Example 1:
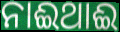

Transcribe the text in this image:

ନାଈଥାଈ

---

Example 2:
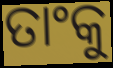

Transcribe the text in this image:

ତାଂକୁ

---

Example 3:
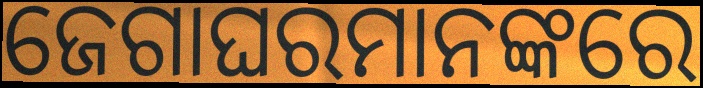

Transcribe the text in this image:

ଜେଗାଘରମାନଙ୍କରେ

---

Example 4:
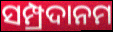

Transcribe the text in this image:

ସମ୍ପ୍ରଦାନମ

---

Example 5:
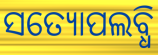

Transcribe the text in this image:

ସତ୍ୟୋପଲବ୍ଧି